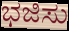
ಭಜಿಸು